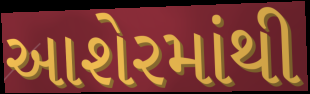
આશેરમાંથી